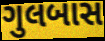
ગુલબાસ